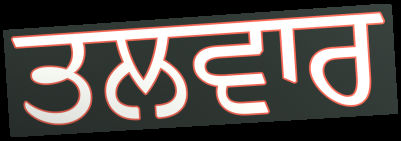
ਤਲਵਾਰ